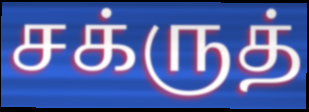
சக்ருத்